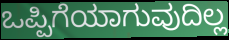
ಒಪ್ಪಿಗೆಯಾಗುವುದಿಲ್ಲ